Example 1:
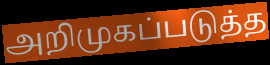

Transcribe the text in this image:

அறிமுகப்படுத்த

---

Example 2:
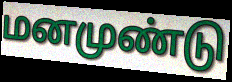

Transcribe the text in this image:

மனமுண்டு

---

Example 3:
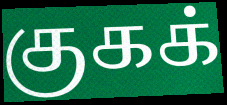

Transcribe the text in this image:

குகக்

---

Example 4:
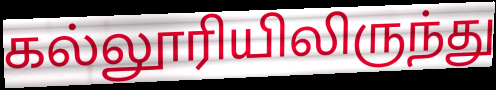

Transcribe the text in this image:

கல்லூரியிலிருந்து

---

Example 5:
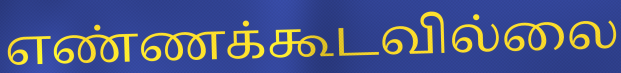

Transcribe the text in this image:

எண்ணக்கூடவில்லை